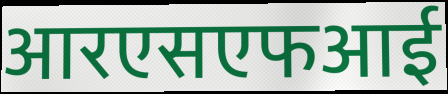
आरएसएफआई